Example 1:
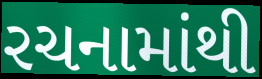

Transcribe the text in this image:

રચનામાંથી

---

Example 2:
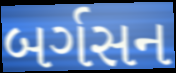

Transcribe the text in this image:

બર્ગસન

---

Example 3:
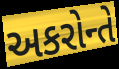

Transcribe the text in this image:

અકરોન્તે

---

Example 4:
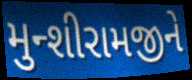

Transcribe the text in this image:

મુન્શીરામજીને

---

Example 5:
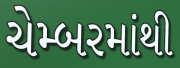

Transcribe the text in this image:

ચેમ્બરમાંથી